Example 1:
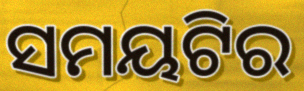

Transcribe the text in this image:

ସମୟଟିର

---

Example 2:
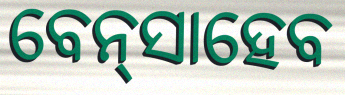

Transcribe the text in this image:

ବେନ୍‌ସାହେବ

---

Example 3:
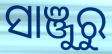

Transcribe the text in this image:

ସାଞ୍ଜୁରୁ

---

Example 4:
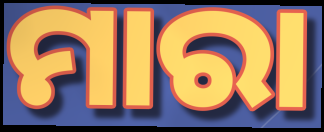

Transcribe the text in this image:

ମାରା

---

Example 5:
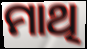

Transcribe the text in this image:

ମାଥି